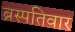
ब्रस्पतिवार